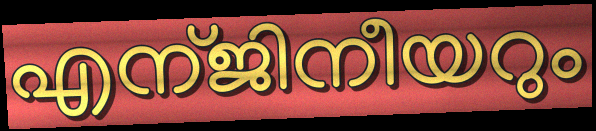
എന്ജിനീയറും